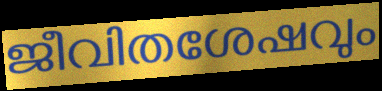
ജീവിതശേഷവും